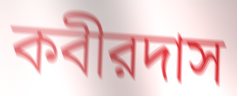
কবীরদাস